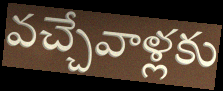
వచ్చేవాళ్లకు